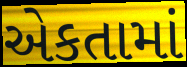
એકતામાં